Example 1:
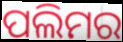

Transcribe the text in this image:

ପଲିମର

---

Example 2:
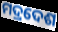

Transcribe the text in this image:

ମଦ୍ରଦେଶ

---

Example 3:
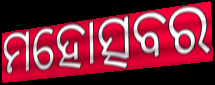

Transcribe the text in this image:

ମହୋତ୍ସବର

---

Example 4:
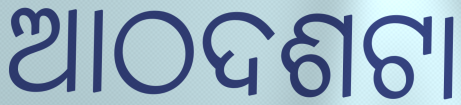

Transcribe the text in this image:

ଆଠଦଶଟା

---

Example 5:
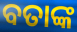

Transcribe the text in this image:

ବତାଙ୍କ